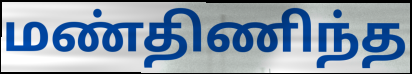
மண்திணிந்த